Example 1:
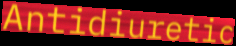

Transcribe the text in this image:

Antidiuretic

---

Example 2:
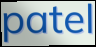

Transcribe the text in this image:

patel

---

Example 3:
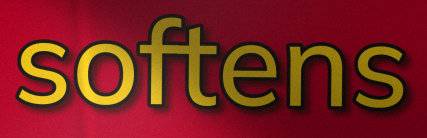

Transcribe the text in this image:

softens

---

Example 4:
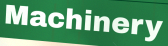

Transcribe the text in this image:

Machinery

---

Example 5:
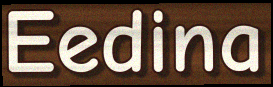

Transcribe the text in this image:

Eedina